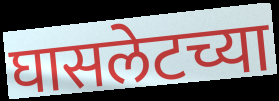
घासलेटच्या